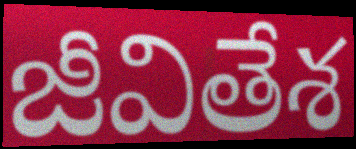
జీవితేశ